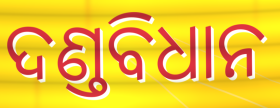
ଦଣ୍ଡବିଧାନ